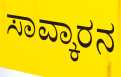
ಸಾವ್ಕಾರನ